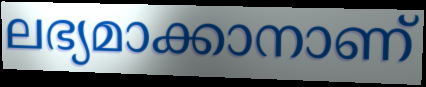
ലഭ്യമാക്കാനാണ്